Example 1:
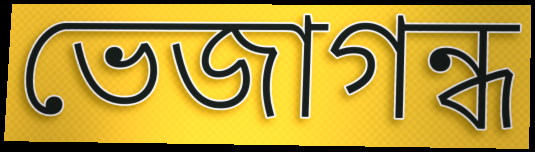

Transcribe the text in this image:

ভেজাগন্ধ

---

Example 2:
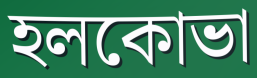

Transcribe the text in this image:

হলকোভা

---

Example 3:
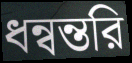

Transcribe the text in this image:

ধন্বন্তরি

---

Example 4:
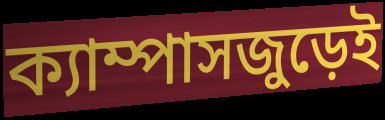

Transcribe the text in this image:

ক্যাম্পাসজুড়েই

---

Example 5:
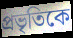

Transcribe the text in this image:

প্রভৃতিকে